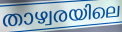
താഴ്വരയിലെ